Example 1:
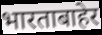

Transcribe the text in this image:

भारताबाहेर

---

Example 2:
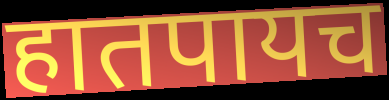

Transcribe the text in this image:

हातपायच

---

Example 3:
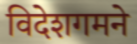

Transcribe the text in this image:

विदेशगमने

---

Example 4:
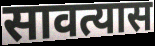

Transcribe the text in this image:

सावत्यास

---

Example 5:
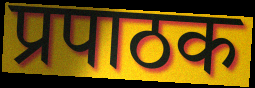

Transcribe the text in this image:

प्रपाठक